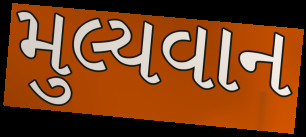
મુલ્યવાન